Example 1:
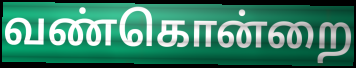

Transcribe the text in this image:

வண்கொன்றை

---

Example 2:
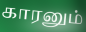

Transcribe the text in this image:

காரனும்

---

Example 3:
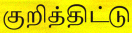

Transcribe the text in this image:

குறித்திட்டு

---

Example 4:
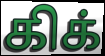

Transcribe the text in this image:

கிக்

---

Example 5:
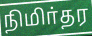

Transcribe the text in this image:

நிமிர்தர